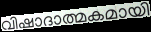
വിഷാദാത്മകമായി